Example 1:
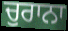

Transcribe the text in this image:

ਚੁਰਾਨਾ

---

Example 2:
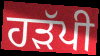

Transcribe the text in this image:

ਹੜੱਪੀ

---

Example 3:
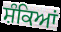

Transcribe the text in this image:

ਸ਼ੰਕਿਆਂ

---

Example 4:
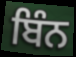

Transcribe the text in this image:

ਬਿੰਨ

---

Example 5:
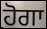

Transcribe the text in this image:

ਹੋਗਾ